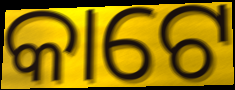
କାଟେ